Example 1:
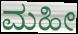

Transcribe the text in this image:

ಮಹೀ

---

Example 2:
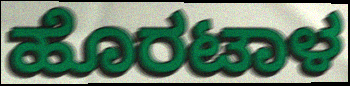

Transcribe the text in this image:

ಹೊರಟಾಳ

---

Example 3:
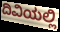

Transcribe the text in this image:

ದಿವಿಯಲ್ಲಿ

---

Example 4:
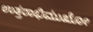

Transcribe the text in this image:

ಉತ್ತರಾಭಿಮುಖೋ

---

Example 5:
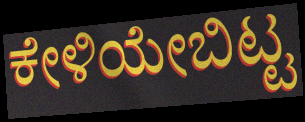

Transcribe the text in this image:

ಕೇಳಿಯೇಬಿಟ್ಟ